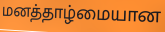
மனத்தாழ்மையான